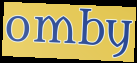
omby